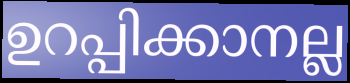
ഉറപ്പിക്കാനല്ല